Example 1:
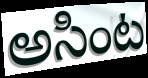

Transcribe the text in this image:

అసింట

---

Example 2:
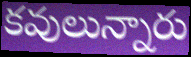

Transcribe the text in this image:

కవులున్నారు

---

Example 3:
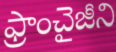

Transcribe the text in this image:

ఫ్రాంచైజీని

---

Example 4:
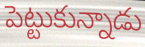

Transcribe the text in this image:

పెట్టుకున్నాడు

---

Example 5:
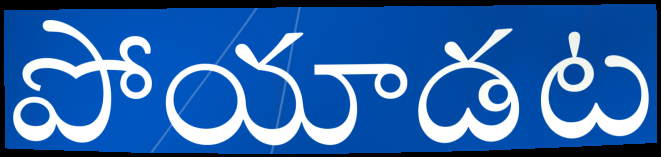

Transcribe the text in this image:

పోయాడట